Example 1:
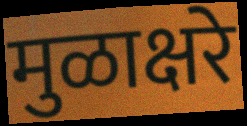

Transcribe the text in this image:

मुळाक्षरे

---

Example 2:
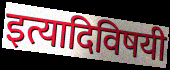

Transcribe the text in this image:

इत्यादिविषयी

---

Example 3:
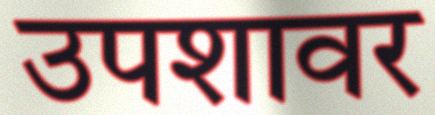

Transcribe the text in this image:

उपशावर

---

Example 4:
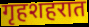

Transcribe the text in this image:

गृहशहरात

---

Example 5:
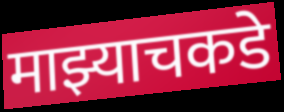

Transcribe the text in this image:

माझ्याचकडे